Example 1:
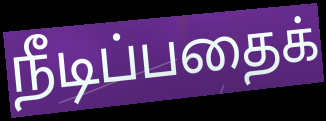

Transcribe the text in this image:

நீடிப்பதைக்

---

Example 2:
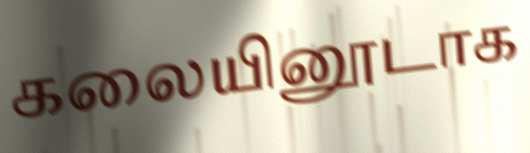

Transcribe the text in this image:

கலையினூடாக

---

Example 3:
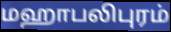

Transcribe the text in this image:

மஹாபலிபுரம்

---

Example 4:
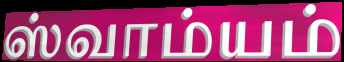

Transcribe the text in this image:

ஸ்வாம்யம்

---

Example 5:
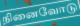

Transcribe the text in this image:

நினைவோடு